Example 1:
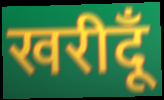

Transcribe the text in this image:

खरीदूँ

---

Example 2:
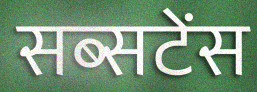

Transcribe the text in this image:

सब्सटेंस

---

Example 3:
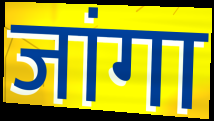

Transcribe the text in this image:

जांगा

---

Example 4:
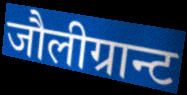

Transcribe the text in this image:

जौलीग्रान्ट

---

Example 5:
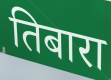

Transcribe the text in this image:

तिबारा